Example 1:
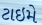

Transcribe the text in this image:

ટાઇમે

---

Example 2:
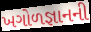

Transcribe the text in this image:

ખગોળજ્ઞાનની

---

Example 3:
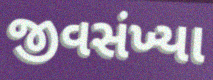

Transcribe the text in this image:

જીવસંખ્યા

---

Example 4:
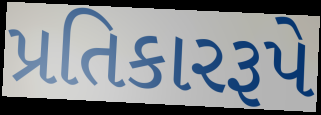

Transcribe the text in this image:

પ્રતિકારરૂપે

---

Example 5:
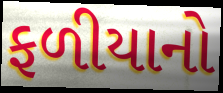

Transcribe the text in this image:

ફળીયાનો